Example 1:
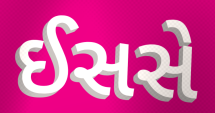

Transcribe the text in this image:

ઈસસે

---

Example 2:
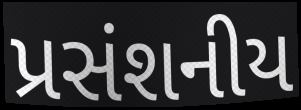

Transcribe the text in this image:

પ્રસંશનીય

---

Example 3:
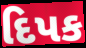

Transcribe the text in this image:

દિપક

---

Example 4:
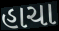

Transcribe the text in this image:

હાચા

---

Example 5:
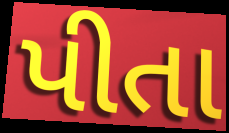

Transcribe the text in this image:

પીતા